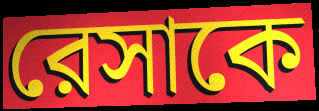
রেসাকে